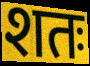
शतः